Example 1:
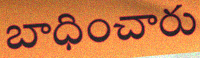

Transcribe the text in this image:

బాధించారు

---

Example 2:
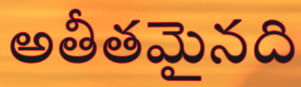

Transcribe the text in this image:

అతీతమైనది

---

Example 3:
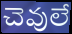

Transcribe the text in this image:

చెవులే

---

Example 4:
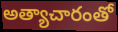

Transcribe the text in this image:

అత్యాచారంతో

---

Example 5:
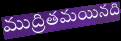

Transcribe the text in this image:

ముద్రితమయినది